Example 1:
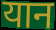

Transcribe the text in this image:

यान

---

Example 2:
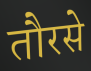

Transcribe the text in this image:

तौरसे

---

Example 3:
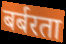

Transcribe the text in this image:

बर्बरता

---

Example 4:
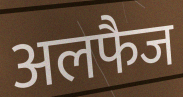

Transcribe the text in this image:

अलफैज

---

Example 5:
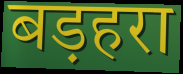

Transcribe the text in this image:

बड़हरा